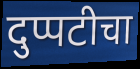
दुप्पटीचा